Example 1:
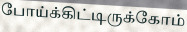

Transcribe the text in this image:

போய்க்கிட்டிருக்கோம்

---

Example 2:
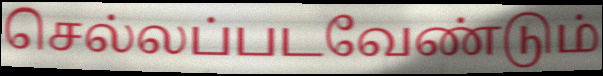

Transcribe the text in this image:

செல்லப்படவேண்டும்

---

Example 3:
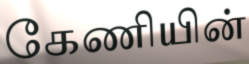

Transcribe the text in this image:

கேணியின்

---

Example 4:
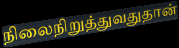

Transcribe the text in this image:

நிலைநிறுத்துவதுதான்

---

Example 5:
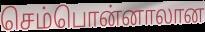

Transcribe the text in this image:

செம்பொன்னாலான